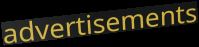
advertisements